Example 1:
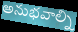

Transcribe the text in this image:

అనుభవాల్ని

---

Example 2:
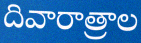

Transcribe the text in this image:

దివారాత్రాల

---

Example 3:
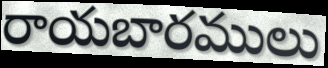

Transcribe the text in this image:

రాయబారములు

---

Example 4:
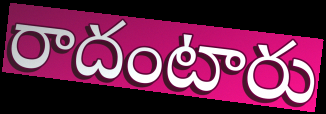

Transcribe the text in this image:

రాదంటారు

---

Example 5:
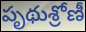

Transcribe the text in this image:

పృథుశ్రోణీ